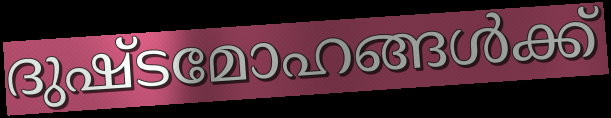
ദുഷ്ടമോഹങ്ങൾക്ക്